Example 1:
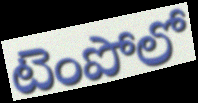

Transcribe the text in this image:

టెంపోలో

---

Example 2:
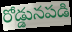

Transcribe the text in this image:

రోడ్డునపడి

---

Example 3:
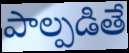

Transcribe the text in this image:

పాల్పడితే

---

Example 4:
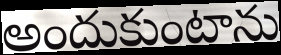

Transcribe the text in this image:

అందుకుంటాను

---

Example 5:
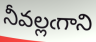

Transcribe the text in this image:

నీవల్లఁగాని